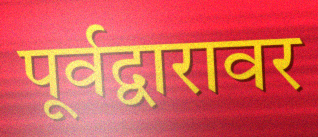
पूर्वद्वारावर